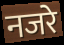
नजरे